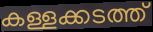
കള്ളക്കടത്ത്